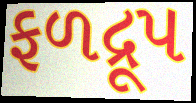
ફળદ્રૂપ